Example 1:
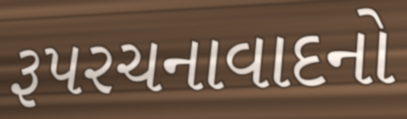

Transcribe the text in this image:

રૂપરચનાવાદનો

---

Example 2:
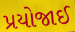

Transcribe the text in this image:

પ્રયોજાઈ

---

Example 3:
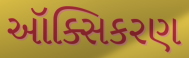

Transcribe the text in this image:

ઑક્સિકરણ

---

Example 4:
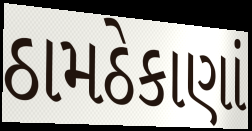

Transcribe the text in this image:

ઠામઠેકાણાં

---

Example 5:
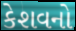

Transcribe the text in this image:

કેશવનો